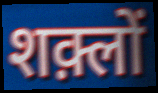
शक़्लों